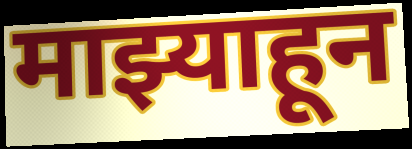
माझ्याहून